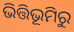
ଭିତ୍ତିଭୂମିରୁ